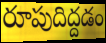
రూపుదిద్దడం